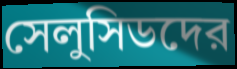
সেলুসিডদের